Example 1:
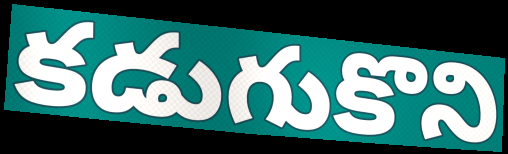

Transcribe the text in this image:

కడుగుకొని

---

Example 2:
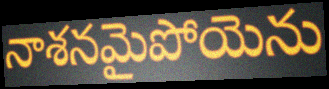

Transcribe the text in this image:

నాశనమైపోయెను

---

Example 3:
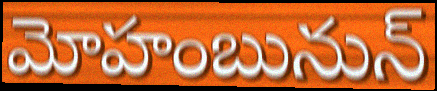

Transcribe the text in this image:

మోహంబునున్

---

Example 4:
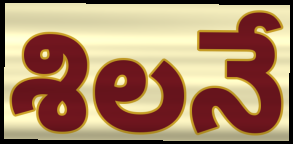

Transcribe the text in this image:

శిలనే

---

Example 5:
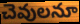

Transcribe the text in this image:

చెవులనూ